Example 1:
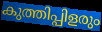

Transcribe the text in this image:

കുത്തിപ്പിളരും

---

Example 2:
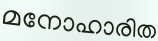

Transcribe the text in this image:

മനോഹാരിത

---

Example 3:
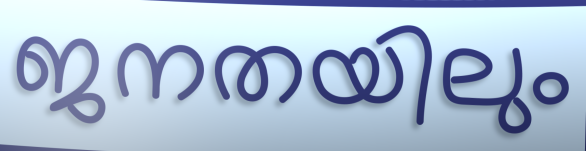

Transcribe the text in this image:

ജനതയിലും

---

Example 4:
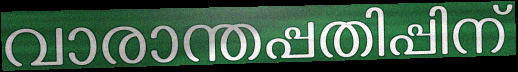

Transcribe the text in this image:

വാരാന്തപ്പതിപ്പിന്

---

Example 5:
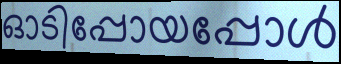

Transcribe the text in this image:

ഓടിപ്പോയപ്പോൾ